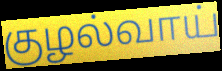
குழல்வாய்